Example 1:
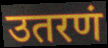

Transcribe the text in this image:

उतरणं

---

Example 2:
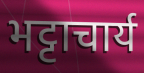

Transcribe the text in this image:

भट्टाचार्य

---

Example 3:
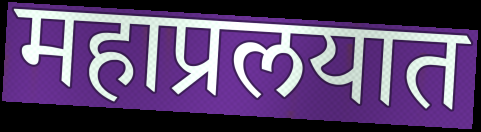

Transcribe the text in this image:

महाप्रलयात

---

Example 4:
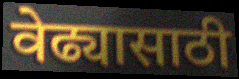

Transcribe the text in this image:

वेढ्यासाठी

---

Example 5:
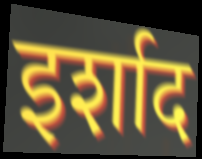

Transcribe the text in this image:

इर्शाद